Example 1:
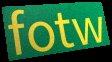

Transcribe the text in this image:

fotw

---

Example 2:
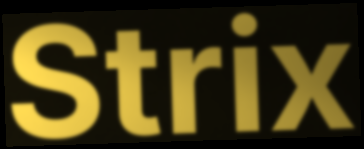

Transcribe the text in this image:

Strix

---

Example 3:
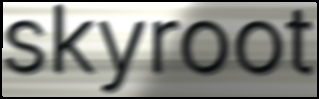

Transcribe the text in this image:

skyroot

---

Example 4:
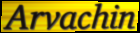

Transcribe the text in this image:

Arvachin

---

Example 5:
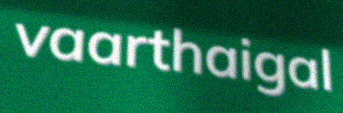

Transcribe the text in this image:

vaarthaigal